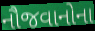
નૌજવાનોના